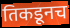
तिकडूनच